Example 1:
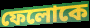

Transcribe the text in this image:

ফেলোকে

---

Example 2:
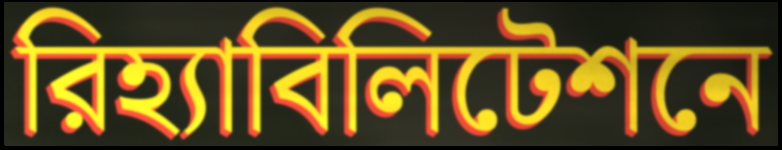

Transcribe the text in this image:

রিহ্যাবিলিটেশনে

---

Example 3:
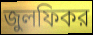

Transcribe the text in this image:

জুলফিকর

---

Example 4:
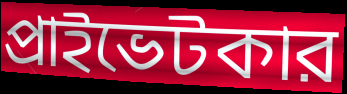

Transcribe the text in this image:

প্রাইভেটকার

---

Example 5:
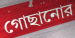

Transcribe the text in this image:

গোছানোর